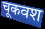
चूकवश